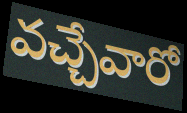
వచ్చేవారో